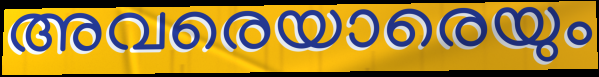
അവരെയാരെയും